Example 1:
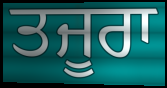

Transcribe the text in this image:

ਤਜੂਰਾ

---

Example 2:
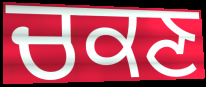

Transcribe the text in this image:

ਚਕਣ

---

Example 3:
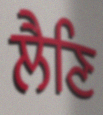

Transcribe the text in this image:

ਲੈਣਿ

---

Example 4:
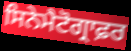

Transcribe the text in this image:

ਸਿਨੇਮੈਟੋਗ੍ਰਾਫ਼ਰ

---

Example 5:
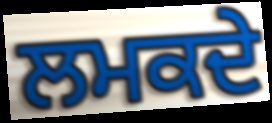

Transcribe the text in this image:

ਲਮਕਦੇ